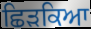
ਛਿੜਕਿਆ